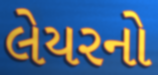
લેયરનો